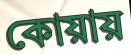
কোয়ায়